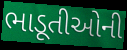
ભાડૂતીઓની